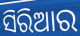
ସିରିଆର